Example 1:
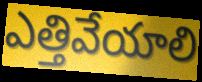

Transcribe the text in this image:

ఎత్తివేయాలి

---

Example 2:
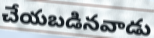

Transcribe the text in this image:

చేయబడినవాడు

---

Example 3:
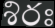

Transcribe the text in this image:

శిరః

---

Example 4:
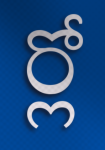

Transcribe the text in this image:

ర్లో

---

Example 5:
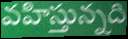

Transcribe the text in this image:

వహిస్తున్నది